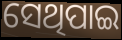
ସେଥିପାଇ